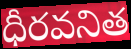
ధీరవనిత